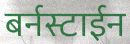
बर्नस्टाईन